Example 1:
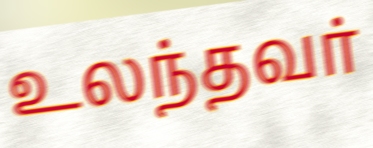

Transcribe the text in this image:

உலந்தவர்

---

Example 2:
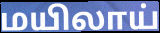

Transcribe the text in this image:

மயிலாய்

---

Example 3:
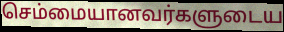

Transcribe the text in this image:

செம்மையானவர்களுடைய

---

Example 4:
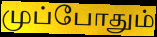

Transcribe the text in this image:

முப்போதும்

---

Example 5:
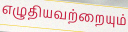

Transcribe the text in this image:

எழுதியவற்றையும்